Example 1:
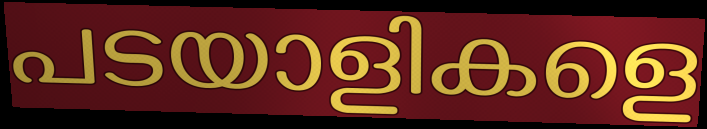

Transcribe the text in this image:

പടയാളികളെ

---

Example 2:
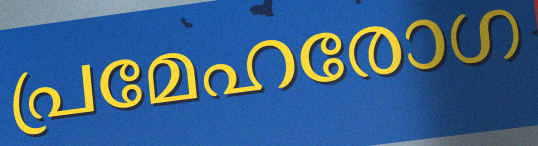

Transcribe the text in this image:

പ്രമേഹരോഗ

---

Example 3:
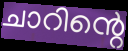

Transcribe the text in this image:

ചാറിന്റെ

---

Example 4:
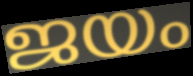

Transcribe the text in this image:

ജയം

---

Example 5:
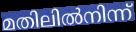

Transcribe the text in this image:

മതിലിൽനിന്ന്